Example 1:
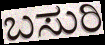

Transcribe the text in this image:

ಬಸುರಿ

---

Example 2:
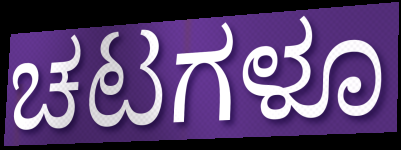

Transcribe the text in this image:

ಚಟಗಳೂ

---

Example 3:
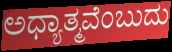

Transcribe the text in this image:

ಅಧ್ಯಾತ್ಮವೆಂಬುದು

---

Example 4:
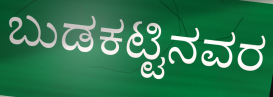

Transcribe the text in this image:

ಬುಡಕಟ್ಟಿನವರ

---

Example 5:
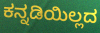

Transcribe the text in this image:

ಕನ್ನಡಿಯಿಲ್ಲದ